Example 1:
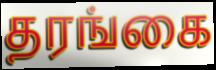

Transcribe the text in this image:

தரங்கை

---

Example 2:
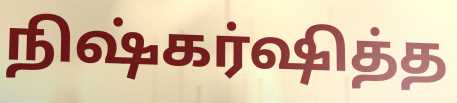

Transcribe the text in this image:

நிஷ்கர்ஷித்த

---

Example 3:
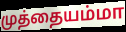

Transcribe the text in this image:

முத்தையம்மா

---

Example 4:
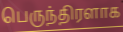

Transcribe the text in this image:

பெருந்திரளாக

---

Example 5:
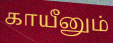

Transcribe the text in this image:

காயீனும்